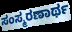
ಸಂಸ್ಮರಣಾರ್ಥ